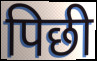
पिछी